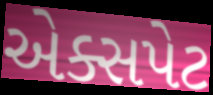
એક્સપેટ